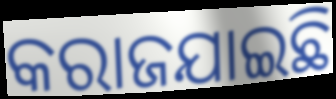
କରାଜଯାଇଛି